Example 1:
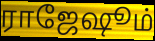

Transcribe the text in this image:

ராஜேஷூம்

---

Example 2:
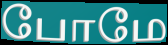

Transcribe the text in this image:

போமே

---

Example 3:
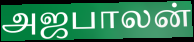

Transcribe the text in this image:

அஜபாலன்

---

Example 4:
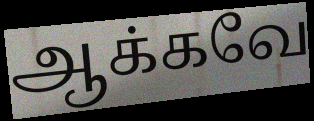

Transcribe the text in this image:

ஆக்கவே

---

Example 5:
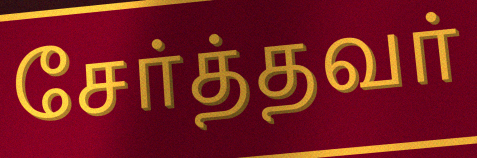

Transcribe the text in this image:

சேர்த்தவர்